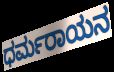
ಧರ್ಮರಾಯನ